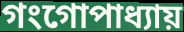
গংগোপাধ্যায়